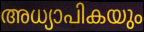
അധ്യാപികയും